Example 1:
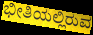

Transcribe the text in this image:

ಭೀತಿಯಲ್ಲಿರುವ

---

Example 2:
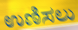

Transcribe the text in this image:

ಉಣಿಸಲು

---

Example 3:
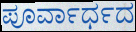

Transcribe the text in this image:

ಪೂರ್ವಾರ್ಧದ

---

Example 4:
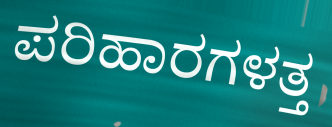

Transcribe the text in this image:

ಪರಿಹಾರಗಳತ್ತ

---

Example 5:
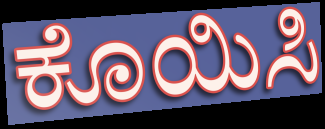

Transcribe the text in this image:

ಕೊಯಿಸಿ